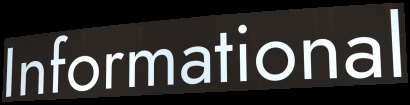
Informational